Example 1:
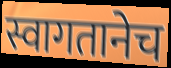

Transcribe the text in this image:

स्वागतानेच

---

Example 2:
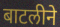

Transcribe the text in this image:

बाटलीने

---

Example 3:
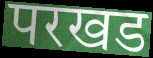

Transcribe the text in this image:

परखड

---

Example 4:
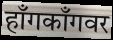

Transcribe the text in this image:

हाँगकाँगवर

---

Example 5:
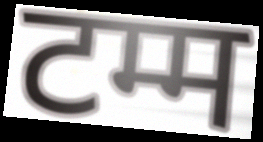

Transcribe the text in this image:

टम्म